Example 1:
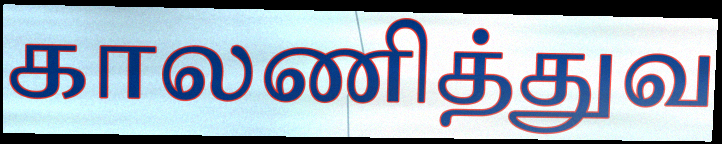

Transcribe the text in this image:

காலணித்துவ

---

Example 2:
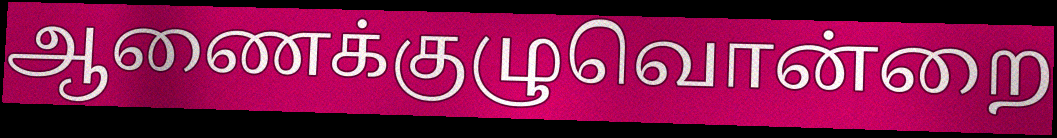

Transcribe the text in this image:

ஆணைக்குழுவொன்றை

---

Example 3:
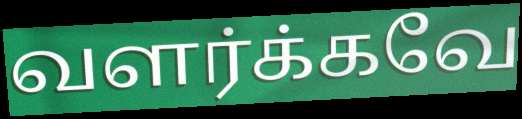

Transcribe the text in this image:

வளர்க்கவே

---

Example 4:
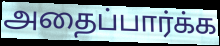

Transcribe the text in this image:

அதைப்பார்க்க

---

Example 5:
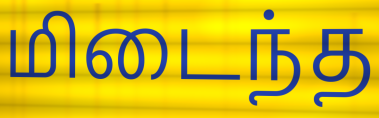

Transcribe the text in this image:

மிடைந்த